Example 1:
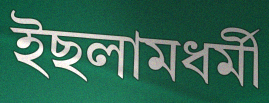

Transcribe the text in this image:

ইছলামধৰ্মী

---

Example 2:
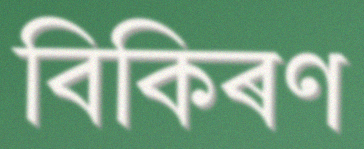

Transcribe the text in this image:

বিকিৰণ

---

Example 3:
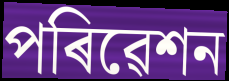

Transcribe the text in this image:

পৰিৱেশন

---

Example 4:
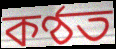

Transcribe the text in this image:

কণ্ঠত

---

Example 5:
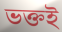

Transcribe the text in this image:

ভক্তই